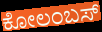
ಕೋಲಂಬಸ್